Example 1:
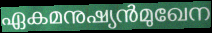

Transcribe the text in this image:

ഏകമനുഷ്യൻമുഖേന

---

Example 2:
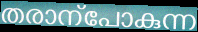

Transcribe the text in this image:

തരാന്പോകുന്ന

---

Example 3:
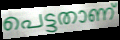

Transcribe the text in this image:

പെട്ടതാണ്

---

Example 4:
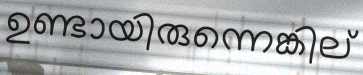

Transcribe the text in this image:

ഉണ്ടായിരുന്നെങ്കില്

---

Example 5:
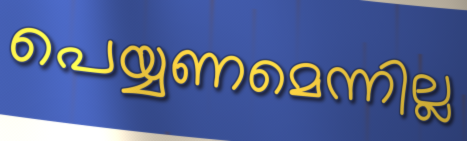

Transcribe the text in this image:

പെയ്യണമെന്നില്ല